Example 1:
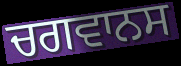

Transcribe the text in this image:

ਚਗਵਾਨਸ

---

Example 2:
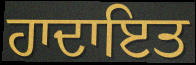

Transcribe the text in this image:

ਹਾਦਾਇਤ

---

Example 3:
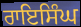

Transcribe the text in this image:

ਰਾਇਸਿੰਘ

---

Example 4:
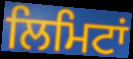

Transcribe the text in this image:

ਲਿਮਿਟਾਂ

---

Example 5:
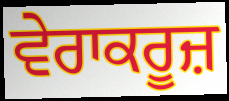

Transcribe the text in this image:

ਵੇਰਾਕਰੂਜ਼